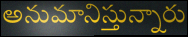
అనుమానిస్తున్నారు